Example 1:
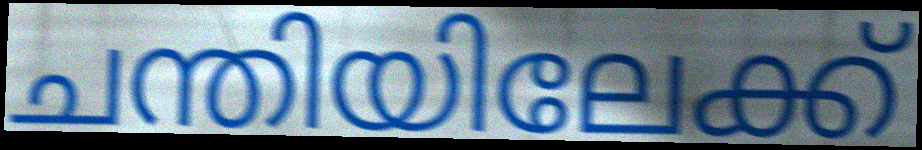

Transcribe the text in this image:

ചന്തിയിലേക്ക്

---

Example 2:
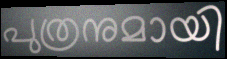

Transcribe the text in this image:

പുത്രനുമായി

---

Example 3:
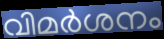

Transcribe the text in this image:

വിമർശനം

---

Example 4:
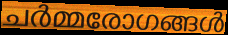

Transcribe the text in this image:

ചർമ്മരോഗങ്ങൾ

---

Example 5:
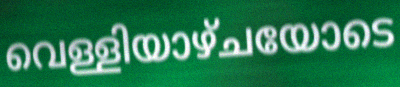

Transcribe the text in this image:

വെള്ളിയാഴ്ചയോടെ